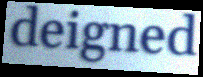
deigned